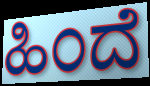
ಹಿಂದೆ